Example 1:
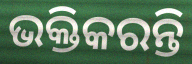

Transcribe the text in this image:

ଭକ୍ତିକରନ୍ତି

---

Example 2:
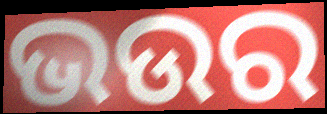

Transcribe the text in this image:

ଭଉର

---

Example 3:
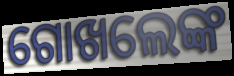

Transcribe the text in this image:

ଗୋଖଲେଙ୍କ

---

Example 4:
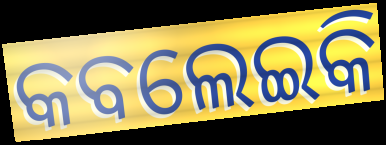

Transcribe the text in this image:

କବଲେଇକି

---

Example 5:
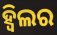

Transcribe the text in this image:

ହ୍ଵିଲର